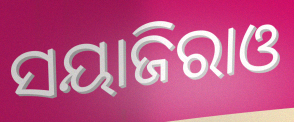
ସୟାଜିରାଓ